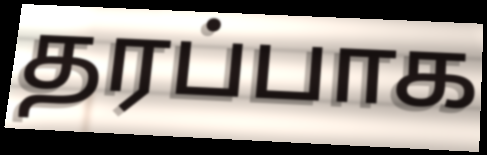
தரப்பாக